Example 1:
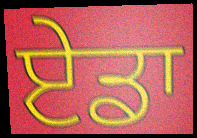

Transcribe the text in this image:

ਏਡਾ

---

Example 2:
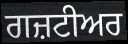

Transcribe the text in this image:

ਗਜ਼ਟੀਅਰ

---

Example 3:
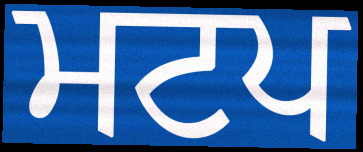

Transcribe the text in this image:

ਮਟਪ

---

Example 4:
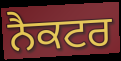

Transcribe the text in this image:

ਨੈਕਟਰ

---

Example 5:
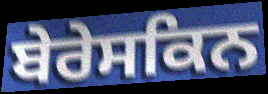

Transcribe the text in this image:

ਬੇਰੇਸਕਿਨ